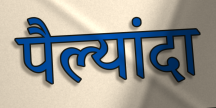
पैल्यांदा